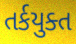
તર્કયુક્ત